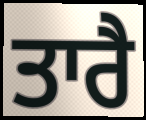
ਤਾਰੈ